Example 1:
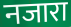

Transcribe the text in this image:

नजारा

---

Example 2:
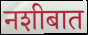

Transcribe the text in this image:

नशीबात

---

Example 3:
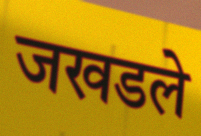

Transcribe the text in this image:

जखडले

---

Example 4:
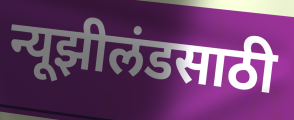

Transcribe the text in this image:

न्यूझीलंडसाठी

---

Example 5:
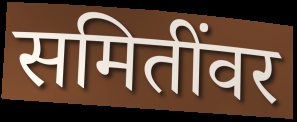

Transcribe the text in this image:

समितींवर